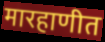
मारहाणीत